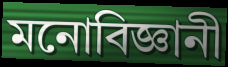
মনোবিজ্ঞানী